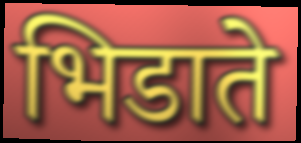
भिडाते